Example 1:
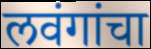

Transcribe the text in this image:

लवंगांचा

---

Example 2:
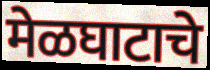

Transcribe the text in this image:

मेळघाटाचे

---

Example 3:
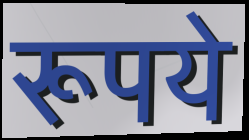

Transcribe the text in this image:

रूपये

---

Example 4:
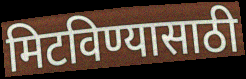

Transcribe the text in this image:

मिटविण्यासाठी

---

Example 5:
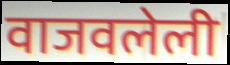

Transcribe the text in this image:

वाजवलेली